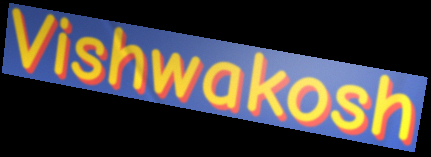
Vishwakosh